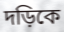
দড়িকে